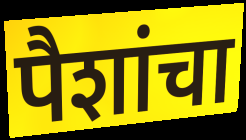
पैशांचा